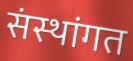
संस्थांगत